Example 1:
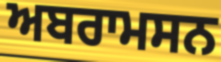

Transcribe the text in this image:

ਅਬਰਾਮਸਨ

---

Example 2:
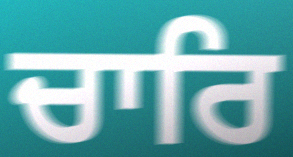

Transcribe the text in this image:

ਚਾਰਿ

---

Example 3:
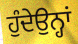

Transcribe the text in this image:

ਹੁੰਦੇਉਨ੍ਹਾਂ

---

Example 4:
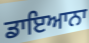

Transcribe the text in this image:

ਡਾਇਆਨਾ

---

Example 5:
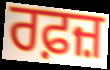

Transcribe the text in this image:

ਰਫ਼ਜ਼